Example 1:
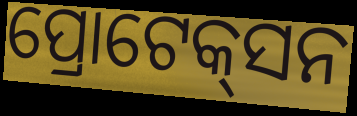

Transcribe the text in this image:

ପ୍ରୋଟେକ୍‌ସନ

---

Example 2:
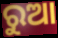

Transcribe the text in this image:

ରୁଆ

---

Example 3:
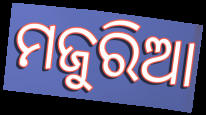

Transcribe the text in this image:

ମଜୁରିଆ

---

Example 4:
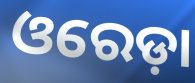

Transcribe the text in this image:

ଓରେଡ଼ା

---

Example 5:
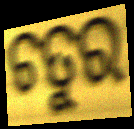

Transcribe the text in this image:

ଚତୁର